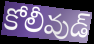
కోలీవుడ్